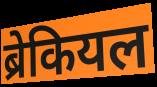
ब्रेकियल